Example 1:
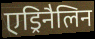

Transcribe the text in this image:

एड्रिनैलिन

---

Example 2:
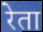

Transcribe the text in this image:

रेता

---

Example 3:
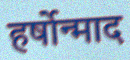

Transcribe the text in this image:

हर्षोन्माद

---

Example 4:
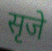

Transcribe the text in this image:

सृजे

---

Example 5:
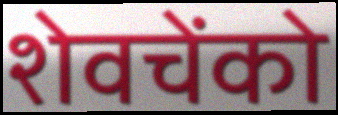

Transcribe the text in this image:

शेवचेंको